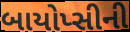
બાયોપ્સીની